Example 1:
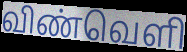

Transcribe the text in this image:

விண்வெளி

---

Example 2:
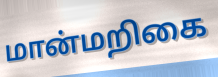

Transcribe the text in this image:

மான்மறிகை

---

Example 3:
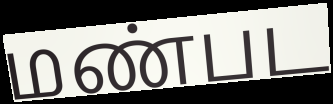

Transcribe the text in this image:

மண்பட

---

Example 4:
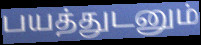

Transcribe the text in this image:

பயத்துடனும்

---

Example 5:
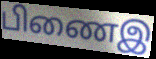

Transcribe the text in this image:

பிணைஇ